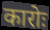
कारोः